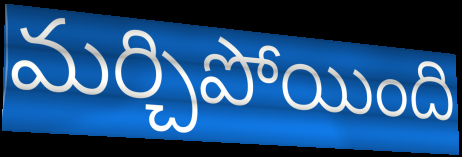
మర్చిపోయింది